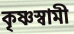
কৃষ্ণস্বামী